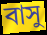
বাসু